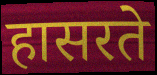
हासरते